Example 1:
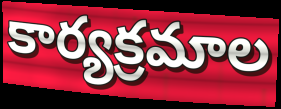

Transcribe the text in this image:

కార్యక్రమాల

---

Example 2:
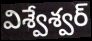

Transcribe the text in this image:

విశ్వేశ్వర్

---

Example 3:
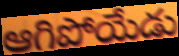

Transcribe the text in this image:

ఆగిపోయేడు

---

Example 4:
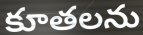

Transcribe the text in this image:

కూతలను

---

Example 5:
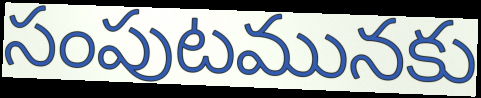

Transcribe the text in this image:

సంపుటమునకు